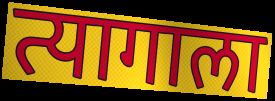
त्यागाला